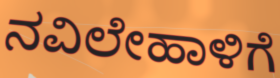
ನವಿಲೇಹಾಳಿಗೆ